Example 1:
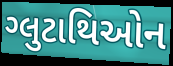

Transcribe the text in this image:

ગ્લુટાથિઓન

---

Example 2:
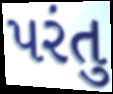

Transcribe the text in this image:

પરંતુ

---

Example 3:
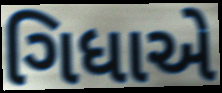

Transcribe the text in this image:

ગિધાએ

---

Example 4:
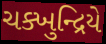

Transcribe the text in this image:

ચક્ખુન્દ્રિયે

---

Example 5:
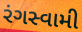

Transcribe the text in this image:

રંગસ્વામી